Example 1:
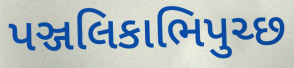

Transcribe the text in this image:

પઞ્જલિકાભિપુચ્છ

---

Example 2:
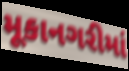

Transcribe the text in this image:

મૂકાનગરીમાં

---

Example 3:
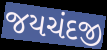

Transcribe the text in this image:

જયચંદજી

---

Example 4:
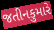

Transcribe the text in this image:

જતીનકુમારે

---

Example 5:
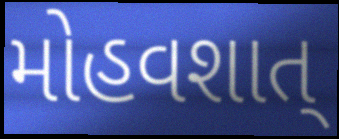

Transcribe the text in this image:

મોહવશાત્